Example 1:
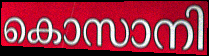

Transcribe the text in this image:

കൊസാനി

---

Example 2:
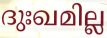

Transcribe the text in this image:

ദുഃഖമില്ല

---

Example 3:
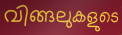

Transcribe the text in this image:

വിങ്ങലുകളുടെ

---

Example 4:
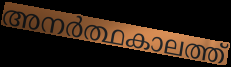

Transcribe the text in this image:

അനർത്ഥകാലത്ത്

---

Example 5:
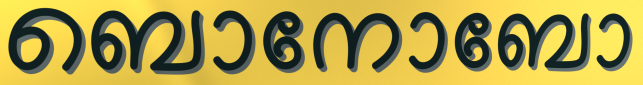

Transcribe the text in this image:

ബൊനോബോ